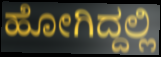
ಹೋಗಿದ್ದಲ್ಲಿ